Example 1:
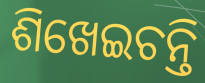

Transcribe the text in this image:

ଶିଖେଇଚନ୍ତି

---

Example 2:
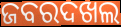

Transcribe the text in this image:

ଜବରଦଖଲ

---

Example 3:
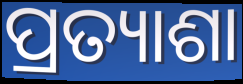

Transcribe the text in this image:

ପ୍ରତ୍ୟାଶା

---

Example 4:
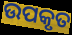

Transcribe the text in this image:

ଉପକୃତ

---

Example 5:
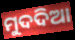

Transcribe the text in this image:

ମୁଦଦିଆ